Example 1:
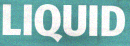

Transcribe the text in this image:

LIQUID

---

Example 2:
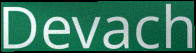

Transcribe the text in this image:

Devach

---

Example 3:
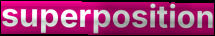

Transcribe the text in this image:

superposition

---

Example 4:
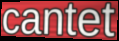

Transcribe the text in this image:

cantet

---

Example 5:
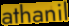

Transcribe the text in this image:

athanil